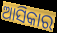
ଆସିକାର